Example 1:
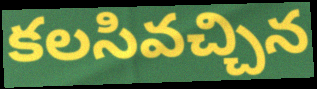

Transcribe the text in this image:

కలసివచ్చిన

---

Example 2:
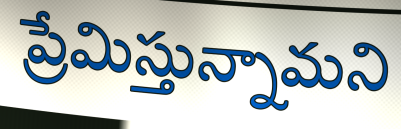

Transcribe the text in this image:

ప్రేమిస్తున్నామని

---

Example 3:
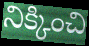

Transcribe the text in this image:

నిక్కించి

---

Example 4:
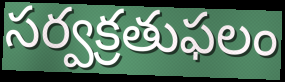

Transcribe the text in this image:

సర్వక్రతుఫలం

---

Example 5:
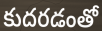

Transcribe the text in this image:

కుదరడంతో